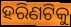
ହରିଣଟିକୁ